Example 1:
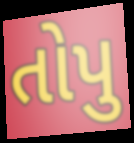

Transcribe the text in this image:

તોપુ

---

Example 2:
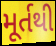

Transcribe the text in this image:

મૂર્તથી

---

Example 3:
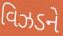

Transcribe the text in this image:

વિઝડને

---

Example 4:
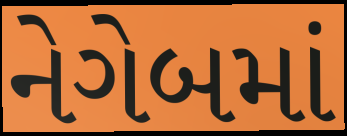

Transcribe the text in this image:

નેગેબમાં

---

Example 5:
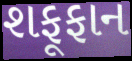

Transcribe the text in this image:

શફૂફાન